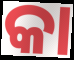
କା